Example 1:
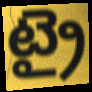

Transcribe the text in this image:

ట్రై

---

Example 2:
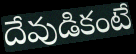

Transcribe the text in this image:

దేవుడికంటే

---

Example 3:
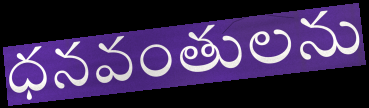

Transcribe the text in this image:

ధనవంతులను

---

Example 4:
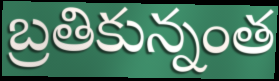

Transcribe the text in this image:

బ్రతికున్నంత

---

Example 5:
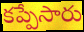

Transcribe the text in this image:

కప్పేసారు